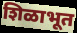
शिळाभूत